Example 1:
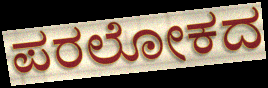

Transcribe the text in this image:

ಪರಲೋಕದ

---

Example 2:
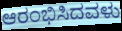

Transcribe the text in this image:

ಆರಂಭಿಸಿದವಳು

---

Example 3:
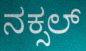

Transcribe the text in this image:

ನಕ್ಸಲ್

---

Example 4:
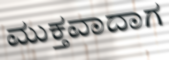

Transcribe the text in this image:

ಮುಕ್ತವಾದಾಗ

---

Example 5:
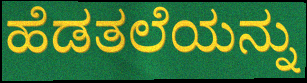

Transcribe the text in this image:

ಹೆಡತಲೆಯನ್ನು